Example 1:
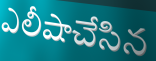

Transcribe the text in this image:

ఎలీషాచేసిన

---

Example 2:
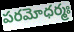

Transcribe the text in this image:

పరమోధర్మః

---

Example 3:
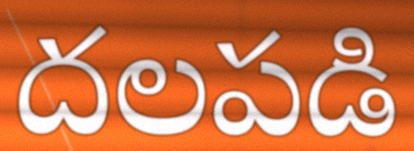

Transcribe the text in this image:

దలపడి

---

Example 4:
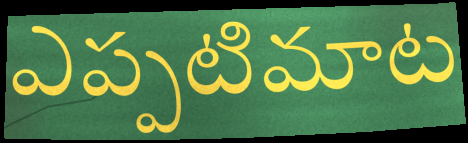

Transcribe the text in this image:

ఎప్పటిమాట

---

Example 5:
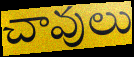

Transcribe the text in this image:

చావులు